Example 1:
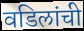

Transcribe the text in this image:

वडिलांची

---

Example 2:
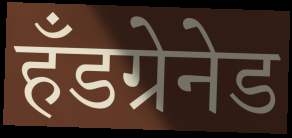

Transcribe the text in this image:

हॅंडग्रेनेड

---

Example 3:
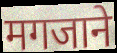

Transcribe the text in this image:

मगजाने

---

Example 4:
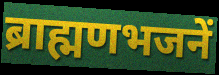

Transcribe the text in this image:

ब्राह्मणभजनें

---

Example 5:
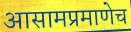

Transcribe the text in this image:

आसामप्रमाणेच